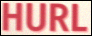
HURL